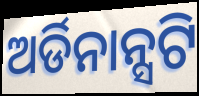
ଅର୍ଡିନାନ୍ସଟି